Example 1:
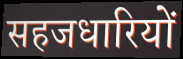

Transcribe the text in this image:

सहजधारियों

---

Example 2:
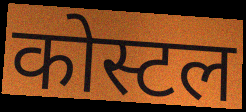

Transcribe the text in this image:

कोस्टल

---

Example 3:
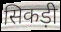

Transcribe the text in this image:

सिकड़ी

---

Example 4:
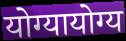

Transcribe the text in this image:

योग्यायोग्य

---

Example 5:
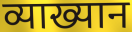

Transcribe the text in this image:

व्याख्यान